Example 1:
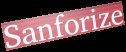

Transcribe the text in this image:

Sanforize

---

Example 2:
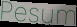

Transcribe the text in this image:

Pesum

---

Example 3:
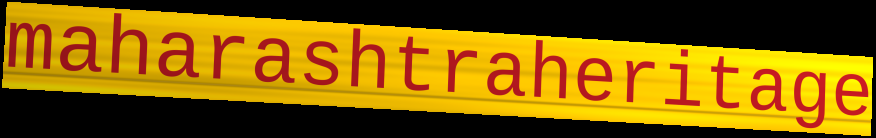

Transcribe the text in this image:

maharashtraheritage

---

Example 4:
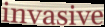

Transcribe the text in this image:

invasive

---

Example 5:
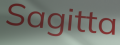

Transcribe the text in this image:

Sagitta